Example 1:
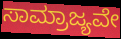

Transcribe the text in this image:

ಸಾಮ್ರಾಜ್ಯವೇ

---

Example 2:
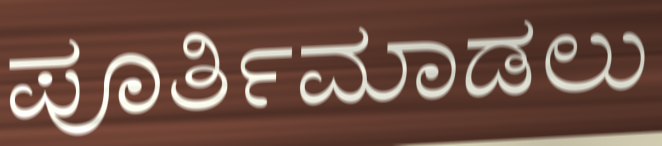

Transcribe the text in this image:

ಪೂರ್ತಿಮಾಡಲು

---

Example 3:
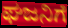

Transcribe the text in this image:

ಘಜನಿಗೆ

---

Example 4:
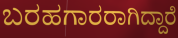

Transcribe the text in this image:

ಬರಹಗಾರರಾಗಿದ್ದಾರೆ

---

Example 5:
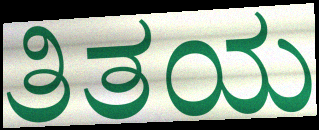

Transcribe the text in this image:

ತಿತಯ